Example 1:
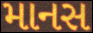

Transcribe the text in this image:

માનસ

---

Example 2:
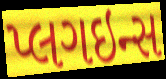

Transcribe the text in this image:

પ્લગઇન્સ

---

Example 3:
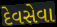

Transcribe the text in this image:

દેવસેવા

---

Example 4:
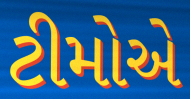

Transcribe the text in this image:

ટીમોએ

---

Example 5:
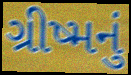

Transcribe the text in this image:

ગ્રીષ્મનું